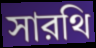
সারথি